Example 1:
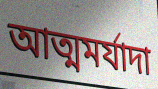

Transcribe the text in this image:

আত্মমর্যাদা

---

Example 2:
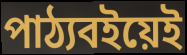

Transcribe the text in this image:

পাঠ্যবইয়েই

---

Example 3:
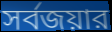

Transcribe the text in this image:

সর্বজয়ার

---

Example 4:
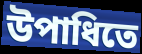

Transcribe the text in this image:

উপাধিতে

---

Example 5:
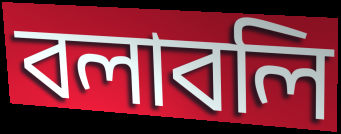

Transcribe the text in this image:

বলাবলি